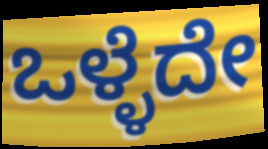
ಒಳ್ಳೆದೇ